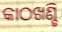
କାଠଖଣ୍ଡି